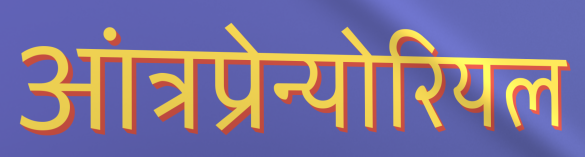
आंत्रप्रेन्योरियल